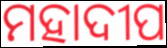
ମହାଦୀପ